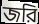
জরি